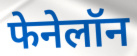
फेनेलॉन